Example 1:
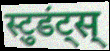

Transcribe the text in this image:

स्टुडंट्स्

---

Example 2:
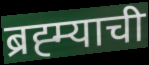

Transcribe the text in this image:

ब्रह्म्याची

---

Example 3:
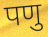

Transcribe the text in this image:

पणु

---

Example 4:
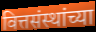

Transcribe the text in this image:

वित्तसंस्थांच्या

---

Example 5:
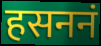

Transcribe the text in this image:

हसननं